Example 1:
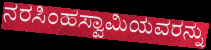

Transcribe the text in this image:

ನರಸಿಂಹಸ್ವಾಮಿಯವರನ್ನು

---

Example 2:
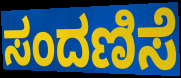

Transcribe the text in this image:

ಸಂದಣಿಸೆ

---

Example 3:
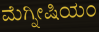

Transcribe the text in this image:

ಮೆಗ್ನೀಷಿಯಂ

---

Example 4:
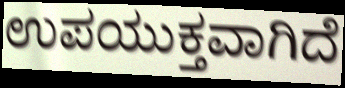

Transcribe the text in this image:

ಉಪಯುಕ್ತವಾಗಿದೆ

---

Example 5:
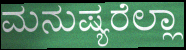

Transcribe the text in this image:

ಮನುಷ್ಯರೆಲ್ಲಾ